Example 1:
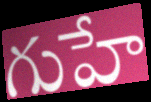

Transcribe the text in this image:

గుహే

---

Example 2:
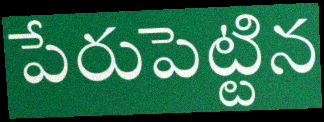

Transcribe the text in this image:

పేరుపెట్టిన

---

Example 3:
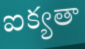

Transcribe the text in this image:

ఐక్యతా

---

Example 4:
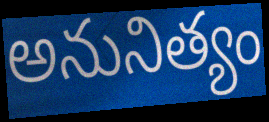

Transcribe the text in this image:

అనునిత్యం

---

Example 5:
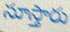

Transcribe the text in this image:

సూస్తారు